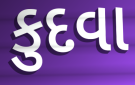
કુદવા